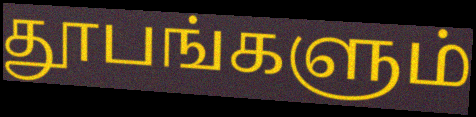
தூபங்களும்